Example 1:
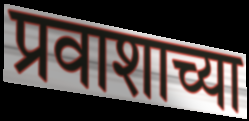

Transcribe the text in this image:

प्रवाशाच्या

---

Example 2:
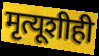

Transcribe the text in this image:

मृत्यूशीही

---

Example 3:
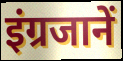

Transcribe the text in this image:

इंग्रजानें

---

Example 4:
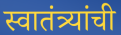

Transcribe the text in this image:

स्वातंत्र्यांची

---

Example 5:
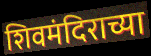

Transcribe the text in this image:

शिवमंदिराच्या